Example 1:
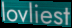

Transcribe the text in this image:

lovliest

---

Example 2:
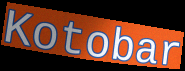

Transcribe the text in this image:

Kotobar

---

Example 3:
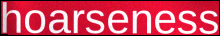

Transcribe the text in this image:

hoarseness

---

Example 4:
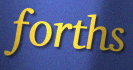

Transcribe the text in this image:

forths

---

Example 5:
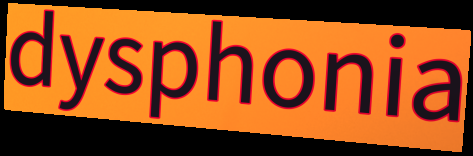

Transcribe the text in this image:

dysphonia